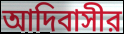
আদিবাসীর